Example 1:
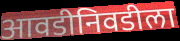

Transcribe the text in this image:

आवडीनिवडीला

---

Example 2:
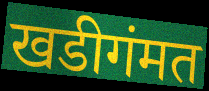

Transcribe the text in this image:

खडीगंमत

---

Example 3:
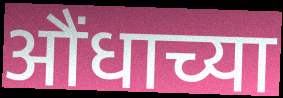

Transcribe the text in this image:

औंधाच्या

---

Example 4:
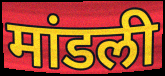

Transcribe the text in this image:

मांडली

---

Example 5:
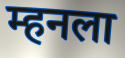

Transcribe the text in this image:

म्हनला